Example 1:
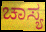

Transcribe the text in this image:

ಚಾಸ್ಯ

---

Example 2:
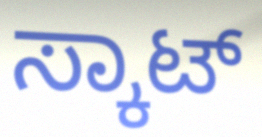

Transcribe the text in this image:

ಸ್ಕಾಟ್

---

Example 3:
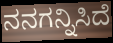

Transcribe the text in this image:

ನನಗನ್ನಿಸಿದೆ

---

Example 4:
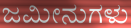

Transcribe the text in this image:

ಜಮೀನುಗಳು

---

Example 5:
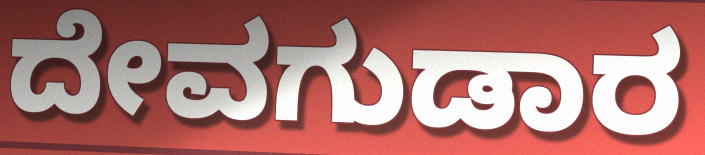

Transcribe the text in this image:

ದೇವಗುಡಾರ